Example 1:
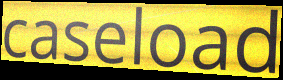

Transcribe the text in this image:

caseload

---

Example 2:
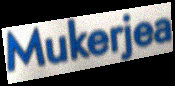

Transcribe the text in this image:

Mukerjea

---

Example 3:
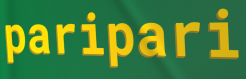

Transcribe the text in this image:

paripari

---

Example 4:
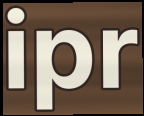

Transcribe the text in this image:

ipr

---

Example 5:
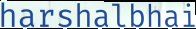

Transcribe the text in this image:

harshalbhai